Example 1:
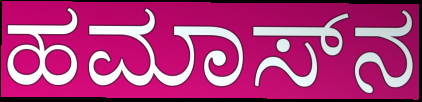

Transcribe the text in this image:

ಹಮಾಸ್‌ನ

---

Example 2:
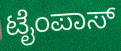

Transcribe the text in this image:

ಟೈಂಪಾಸ್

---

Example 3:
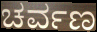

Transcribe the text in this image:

ಚರ್ವಣ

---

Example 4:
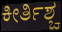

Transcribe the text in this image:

ಕೀರ್ತಿಶ್ಚ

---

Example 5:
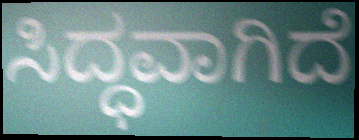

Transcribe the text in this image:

ಸಿದ್ಧವಾಗಿದೆ